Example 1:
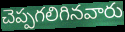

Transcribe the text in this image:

చెప్పగలిగినవారు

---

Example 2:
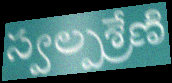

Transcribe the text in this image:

స్వల్పశ్రేణి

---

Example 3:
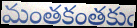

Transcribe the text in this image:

మంతకంతకుఁ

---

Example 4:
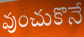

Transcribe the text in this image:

వుంచుకొనే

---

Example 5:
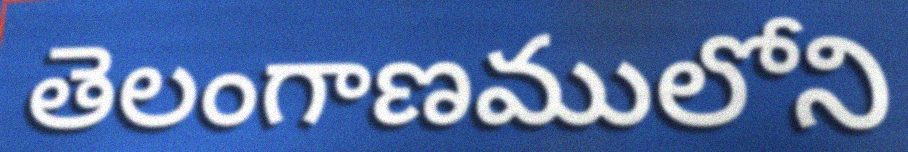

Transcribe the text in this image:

తెలంగాణములోని